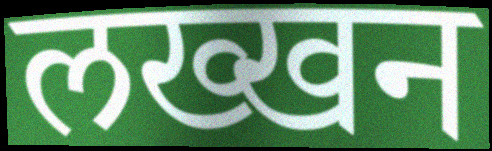
लख्खन